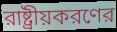
রাষ্ট্রীয়করণের